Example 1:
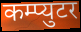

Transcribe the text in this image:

कम्प्युटर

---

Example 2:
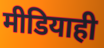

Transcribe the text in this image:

मीडियाही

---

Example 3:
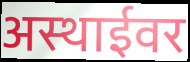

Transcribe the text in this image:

अस्थाईवर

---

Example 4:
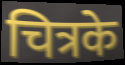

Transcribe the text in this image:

चित्रके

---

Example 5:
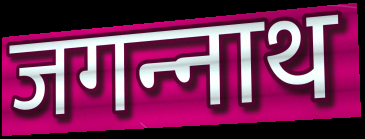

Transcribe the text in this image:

जगन्नाथ